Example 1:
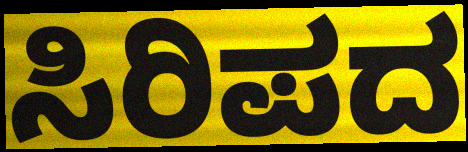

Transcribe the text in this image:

ಸಿರಿಪದ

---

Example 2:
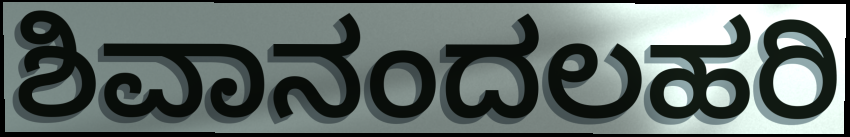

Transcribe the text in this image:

ಶಿವಾನಂದಲಹರಿ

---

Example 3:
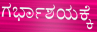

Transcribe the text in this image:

ಗರ್ಭಾಶಯಕ್ಕೆ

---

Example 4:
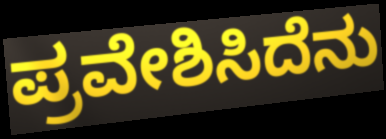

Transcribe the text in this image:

ಪ್ರವೇಶಿಸಿದೆನು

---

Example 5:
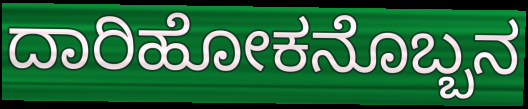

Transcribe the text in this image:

ದಾರಿಹೋಕನೊಬ್ಬನ